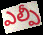
ఎల్పీ